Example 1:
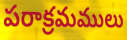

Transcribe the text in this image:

పరాక్రమములు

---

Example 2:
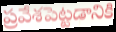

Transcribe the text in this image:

ప్రవేశపెట్టడానికి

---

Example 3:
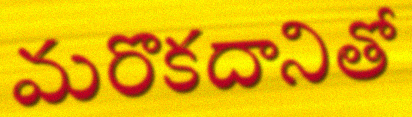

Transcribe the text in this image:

మరొకదానితో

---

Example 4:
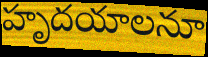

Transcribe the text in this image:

హృదయాలనూ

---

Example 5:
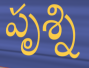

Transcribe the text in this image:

పృశ్ని